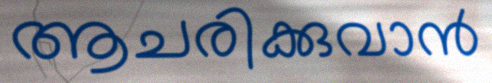
ആചരിക്കുവാൻ